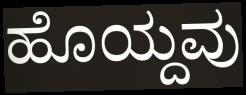
ಹೊಯ್ದವು